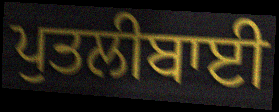
ਪੁਤਲੀਬਾਈ